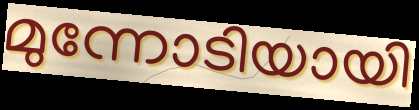
മുന്നോടിയായി